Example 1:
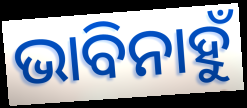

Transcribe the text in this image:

ଭାବିନାହୁଁ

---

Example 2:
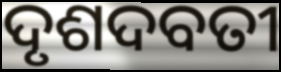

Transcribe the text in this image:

ଦୃଶଦବତୀ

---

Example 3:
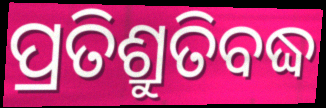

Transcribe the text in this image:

ପ୍ରତିଶ୍ରୁତିବଦ୍ଧ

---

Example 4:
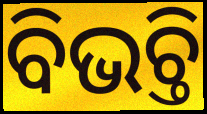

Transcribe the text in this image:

ବିଭଚ୍ତି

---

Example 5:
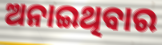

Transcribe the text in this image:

ଅନାଇଥିବାର